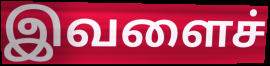
இவளைச்